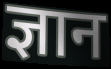
ज्ञान